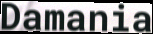
Damania